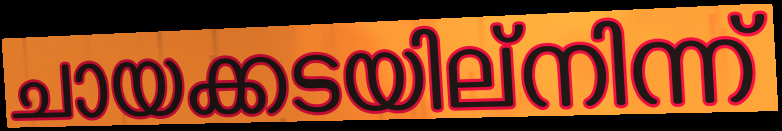
ചായക്കടയില്നിന്ന്